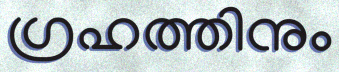
ഗ്രഹത്തിനും